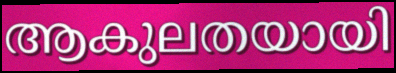
ആകുലതയായി